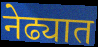
नेढ्यात